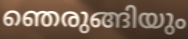
ഞെരുങ്ങിയും